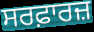
ਸਰਫ਼ਾਰਜ਼